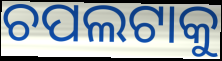
ଚପଲଟାକୁ